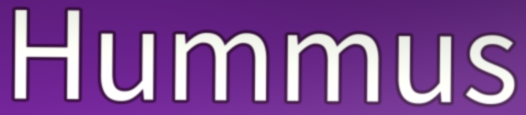
Hummus